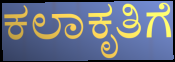
ಕಲಾಕೃತಿಗೆ